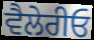
ਵੈਲੇਰੀਓ